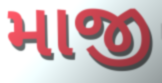
માજી